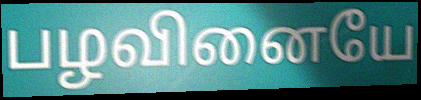
பழவினையே